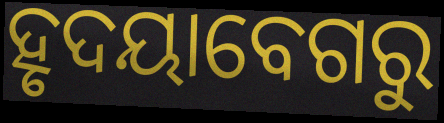
ହୃଦୟାବେଗରୁ